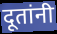
दूतांनी